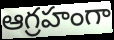
ఆగ్రహంగా